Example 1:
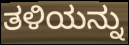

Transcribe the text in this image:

ತಳಿಯನ್ನು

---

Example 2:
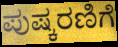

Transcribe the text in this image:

ಪುಷ್ಕರಣಿಗೆ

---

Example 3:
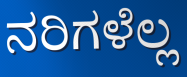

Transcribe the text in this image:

ನರಿಗಳೆಲ್ಲ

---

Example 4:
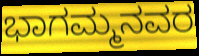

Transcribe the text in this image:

ಭಾಗಮ್ಮನವರ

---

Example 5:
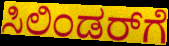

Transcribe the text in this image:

ಸಿಲಿಂಡರ್‌ಗೆ